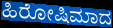
ಹಿರೋಷಿಮಾದ